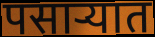
पसार्‍यात